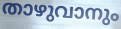
താഴുവാനും